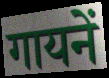
गायनें